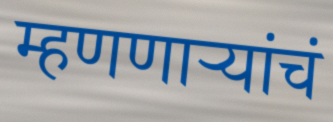
म्हणणाऱ्यांचं